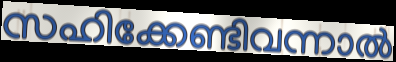
സഹിക്കേണ്ടിവന്നാൽ